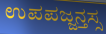
ಉಪಪಜ್ಜನ್ತಸ್ಸ